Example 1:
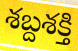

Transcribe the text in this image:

శబ్దశక్తి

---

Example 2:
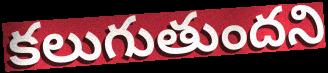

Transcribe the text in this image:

కలుగుతుందని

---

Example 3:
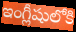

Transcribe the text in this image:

ఇంగ్లీషులోకి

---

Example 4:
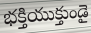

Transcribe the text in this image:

భక్తియుక్తుండై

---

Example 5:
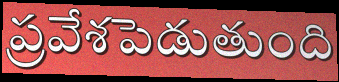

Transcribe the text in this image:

ప్రవేశపెడుతుంది